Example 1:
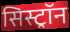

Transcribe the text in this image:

सिस्ट्रॉन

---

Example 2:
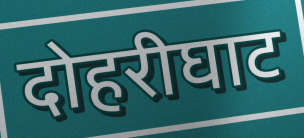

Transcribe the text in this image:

दोहरीघाट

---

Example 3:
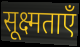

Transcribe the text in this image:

सूक्ष्मताएँ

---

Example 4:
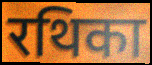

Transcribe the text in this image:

रथिका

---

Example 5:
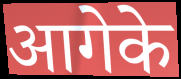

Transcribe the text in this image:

आगेके